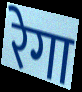
रेगा